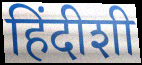
हिंदीशी